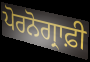
ਪੋਰਨੋਗ੍ਰਾਫ਼ੀ